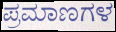
ಪ್ರಮಾಣಗಳ